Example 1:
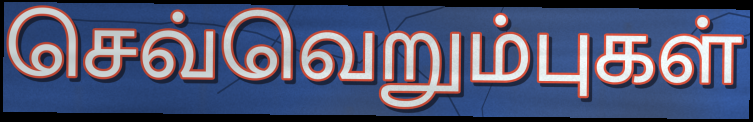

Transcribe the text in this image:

செவ்வெறும்புகள்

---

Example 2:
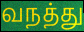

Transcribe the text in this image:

வநத்து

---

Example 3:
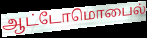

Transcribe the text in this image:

ஆட்டோமொபைல்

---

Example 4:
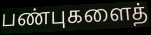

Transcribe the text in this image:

பண்புகளைத்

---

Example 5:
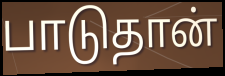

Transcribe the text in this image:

பாடுதான்